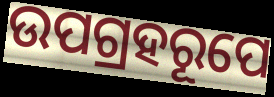
ଉପଗ୍ରହରୂପେ